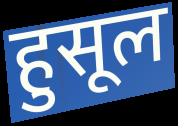
हुसूल